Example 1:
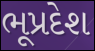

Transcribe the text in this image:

ભૂપ્રદેશ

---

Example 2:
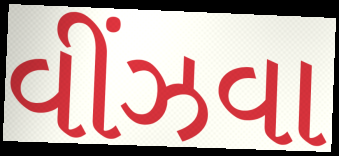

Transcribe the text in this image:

વીંઝવા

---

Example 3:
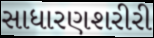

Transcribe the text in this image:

સાધારણશરીરી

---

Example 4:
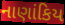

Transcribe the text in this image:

નાણાંકિય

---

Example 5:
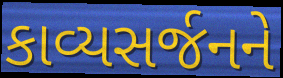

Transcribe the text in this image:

કાવ્યસર્જનને